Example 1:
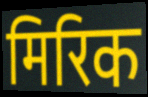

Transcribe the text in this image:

मिरिक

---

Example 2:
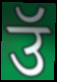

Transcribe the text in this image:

उॅ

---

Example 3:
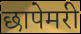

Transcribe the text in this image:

छापेमरी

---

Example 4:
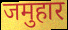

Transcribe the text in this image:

जमुहार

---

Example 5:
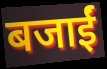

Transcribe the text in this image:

बजाईं